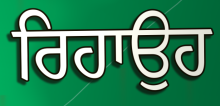
ਰਿਹਾਉਹ